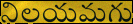
నిలయమగు